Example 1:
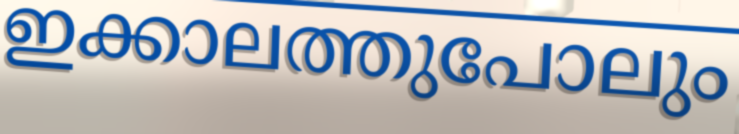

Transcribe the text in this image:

ഇക്കാലത്തുപോലും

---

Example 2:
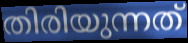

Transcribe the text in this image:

തിരിയുന്നത്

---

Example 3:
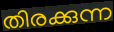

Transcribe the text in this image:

തിരക്കുന്ന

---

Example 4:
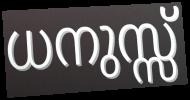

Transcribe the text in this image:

ധനുസ്സ്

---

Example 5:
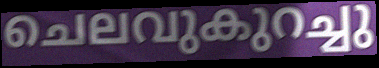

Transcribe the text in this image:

ചെലവുകുറച്ചു